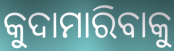
କୁଦାମାରିବାକୁ